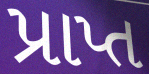
પ્રાપ્‍ત